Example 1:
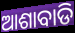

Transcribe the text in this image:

ଆଶାବାଡି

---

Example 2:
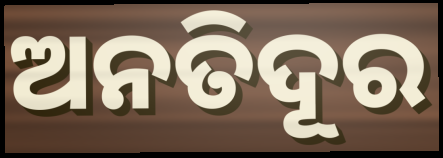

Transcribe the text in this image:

ଅନତିଦୂର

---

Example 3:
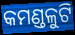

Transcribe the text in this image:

କମଣ୍ଡଳୁଟି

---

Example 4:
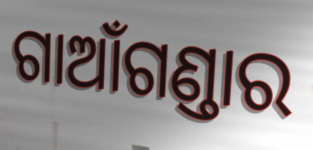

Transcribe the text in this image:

ଗାଆଁଗଣ୍ଡାର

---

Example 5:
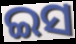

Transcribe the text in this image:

ଇସ